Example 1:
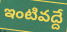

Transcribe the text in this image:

ఇంటివద్దే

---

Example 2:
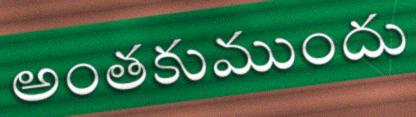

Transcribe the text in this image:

అంతకుముందు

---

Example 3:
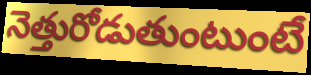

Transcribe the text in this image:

నెత్తురోడుతుంటుంటే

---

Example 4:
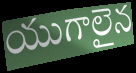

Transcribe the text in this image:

యుగాలైన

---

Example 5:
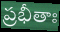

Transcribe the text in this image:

ప్రభీతాః